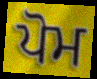
ਪੋਮ